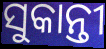
ସୁକାନ୍ତୀ